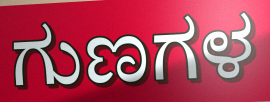
ಗುಣಗಳ